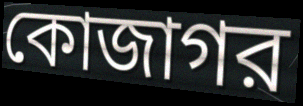
কোজাগর